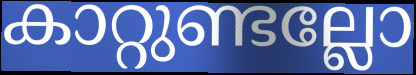
കാറ്റുണ്ടല്ലോ